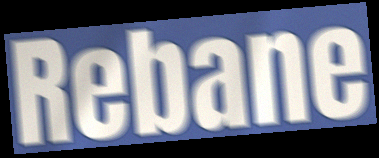
Rebane